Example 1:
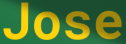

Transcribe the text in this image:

Jose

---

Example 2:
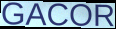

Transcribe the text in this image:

GACOR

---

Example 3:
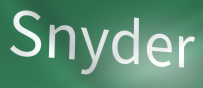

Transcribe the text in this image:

Snyder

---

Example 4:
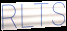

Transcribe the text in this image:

RLTS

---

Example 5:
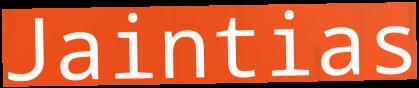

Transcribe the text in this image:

Jaintias